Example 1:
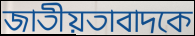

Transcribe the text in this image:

জাতীয়তাবাদকে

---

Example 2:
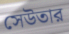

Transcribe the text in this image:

সেউতার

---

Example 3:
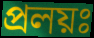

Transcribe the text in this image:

প্রলয়ঃ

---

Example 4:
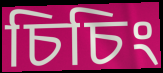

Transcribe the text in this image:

চিচিং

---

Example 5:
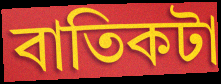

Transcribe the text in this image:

বাতিকটা